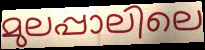
മുലപ്പാലിലെ